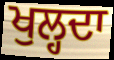
ਖੁਲ੍ਹਦਾ